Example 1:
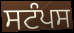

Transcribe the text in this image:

ਸਟੰਪਸ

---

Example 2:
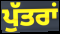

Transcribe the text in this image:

ਪੁੱਤਰਾਂ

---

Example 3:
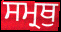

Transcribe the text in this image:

ਸਮ੍ਰਥੁ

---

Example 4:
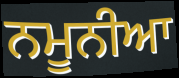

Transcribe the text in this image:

ਨਮੂਨੀਆ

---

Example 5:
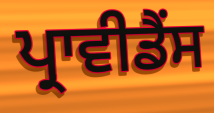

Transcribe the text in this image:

ਪ੍ਰਾਵੀਡੈਂਸ